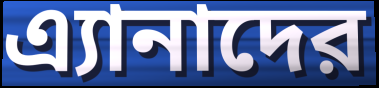
এ্যানাদের